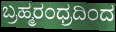
ಬ್ರಹ್ಮರಂಧ್ರದಿಂದ